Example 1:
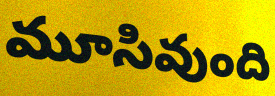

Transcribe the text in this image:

మూసివుంది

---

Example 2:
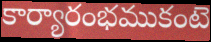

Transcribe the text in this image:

కార్యారంభముకంటె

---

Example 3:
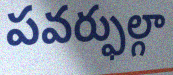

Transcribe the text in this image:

పవర్ఫుల్గా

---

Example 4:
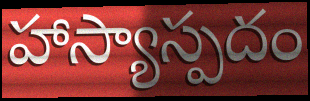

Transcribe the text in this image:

హాస్యాస్పదం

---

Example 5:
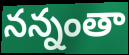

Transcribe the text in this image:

నన్నంతా